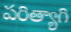
పరిత్యాగి